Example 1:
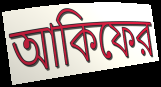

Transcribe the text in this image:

আকিফের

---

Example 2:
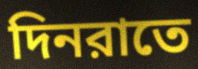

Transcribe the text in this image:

দিনরাতে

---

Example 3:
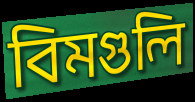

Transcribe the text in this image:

বিমগুলি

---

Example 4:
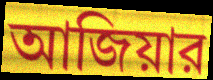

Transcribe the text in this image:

আজিয়ার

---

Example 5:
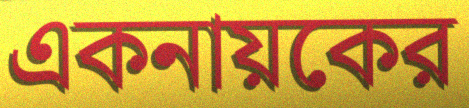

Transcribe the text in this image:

একনায়কের